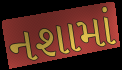
નશામાં